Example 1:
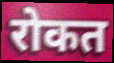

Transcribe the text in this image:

रोकत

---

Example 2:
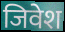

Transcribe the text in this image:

जिवेश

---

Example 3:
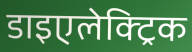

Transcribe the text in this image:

डाइएलेक्ट्रिक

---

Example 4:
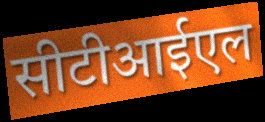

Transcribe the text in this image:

सीटीआईएल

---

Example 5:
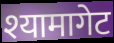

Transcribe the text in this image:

श्यामागेट